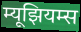
म्यूझियम्स